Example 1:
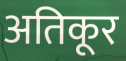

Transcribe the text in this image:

अतिकूर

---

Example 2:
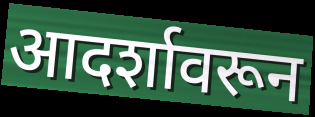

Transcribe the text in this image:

आदर्शावरून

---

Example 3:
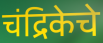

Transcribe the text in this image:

चंद्रिकेचे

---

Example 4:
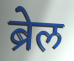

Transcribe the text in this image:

ब्रेल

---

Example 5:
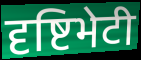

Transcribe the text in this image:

दृष्टिभेटी